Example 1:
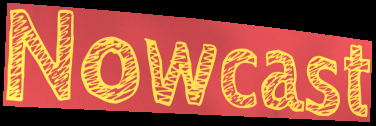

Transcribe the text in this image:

Nowcast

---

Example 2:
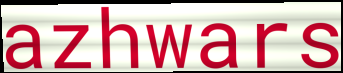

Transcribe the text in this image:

azhwars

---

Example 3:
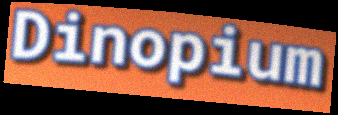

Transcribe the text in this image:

Dinopium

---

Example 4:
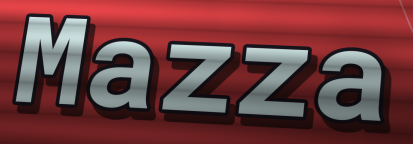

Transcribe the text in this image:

Mazza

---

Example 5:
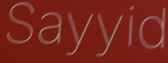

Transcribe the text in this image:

Sayyid